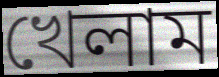
খেলাম